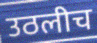
उठलीच